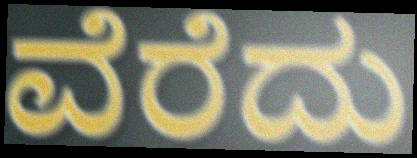
ವೆರೆದು